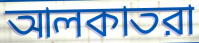
আলকাতরা